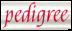
pedigree